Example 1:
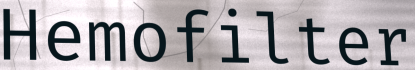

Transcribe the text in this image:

Hemofilter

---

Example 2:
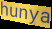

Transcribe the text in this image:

hunya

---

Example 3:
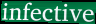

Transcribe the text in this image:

infective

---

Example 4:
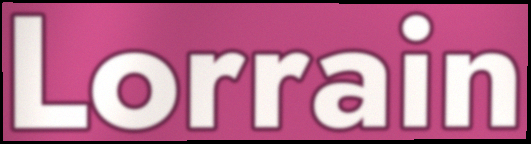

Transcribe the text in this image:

Lorrain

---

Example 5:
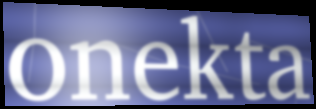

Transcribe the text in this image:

onekta